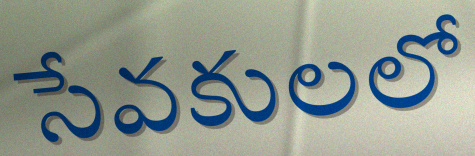
సేవకులలో